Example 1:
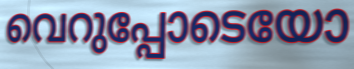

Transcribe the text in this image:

വെറുപ്പോടെയോ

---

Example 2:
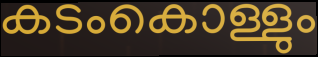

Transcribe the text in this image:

കടംകൊള്ളും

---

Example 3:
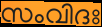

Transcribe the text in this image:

സംവിദഃ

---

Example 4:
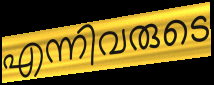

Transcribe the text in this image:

എന്നിവരുടെ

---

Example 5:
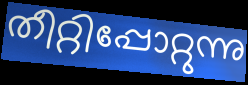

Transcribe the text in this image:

തീറ്റിപ്പോറ്റുന്നു